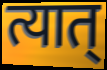
त्यात्